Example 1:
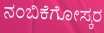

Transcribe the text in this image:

ನಂಬಿಕೆಗೋಸ್ಕರ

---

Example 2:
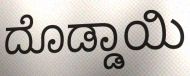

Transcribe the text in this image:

ದೊಡ್ಡಾಯಿ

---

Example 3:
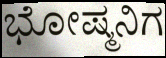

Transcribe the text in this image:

ಭೋಷ್ಮನಿಗ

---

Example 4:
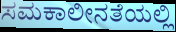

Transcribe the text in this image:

ಸಮಕಾಲೀನತೆಯಲ್ಲಿ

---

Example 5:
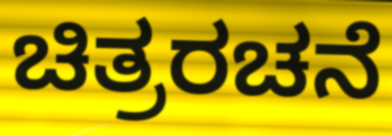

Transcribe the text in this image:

ಚಿತ್ರರಚನೆ